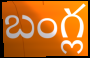
బంగ్ల